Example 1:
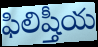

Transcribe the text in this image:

ఫిలిష్తీయ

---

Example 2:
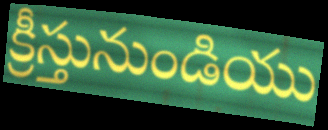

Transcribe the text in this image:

క్రీస్తునుండియు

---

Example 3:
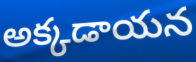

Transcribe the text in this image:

అక్కడాయన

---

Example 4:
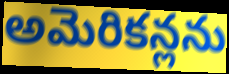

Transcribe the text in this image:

అమెరికన్లను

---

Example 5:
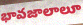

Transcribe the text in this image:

భావజాలాలూ